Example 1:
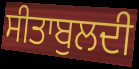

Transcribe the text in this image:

ਸੀਤਾਬੁਲਦੀ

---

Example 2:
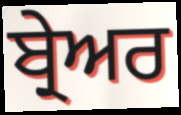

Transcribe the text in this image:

ਬ੍ਰੇਅਰ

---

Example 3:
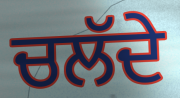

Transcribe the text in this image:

ਚਲੱਦੇ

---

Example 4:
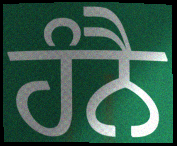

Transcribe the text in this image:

ਹੰਨੈ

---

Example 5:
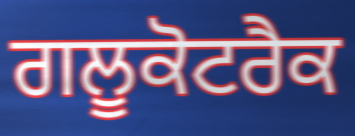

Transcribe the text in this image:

ਗਲੂਕੋਟਰੈਕ